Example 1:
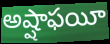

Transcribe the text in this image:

అష్షాఫయీ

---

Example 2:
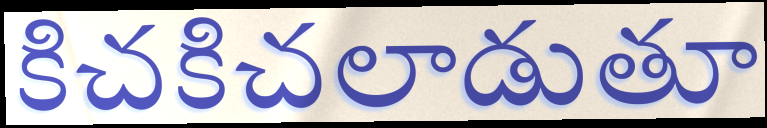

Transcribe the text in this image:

కిచకిచలాడుతూ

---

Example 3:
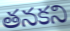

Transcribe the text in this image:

తనకని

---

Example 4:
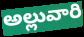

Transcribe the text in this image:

అల్లువారి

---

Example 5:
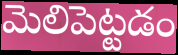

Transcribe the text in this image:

మెలిపెట్టడం